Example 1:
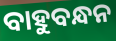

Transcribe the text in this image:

ବାହୁବନ୍ଧନ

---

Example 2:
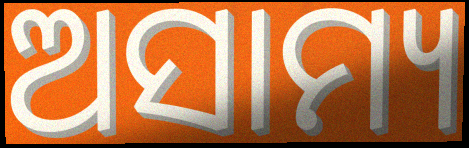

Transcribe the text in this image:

ଅସାମ୍ୟ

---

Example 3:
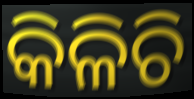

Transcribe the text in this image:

କିଳିଚି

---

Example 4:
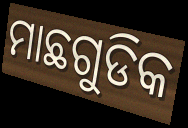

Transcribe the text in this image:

ମାଛଗୁଡିକ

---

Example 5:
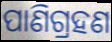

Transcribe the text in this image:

ପାଣିଗ୍ରହଣ